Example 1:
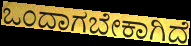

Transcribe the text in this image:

ಒಂದಾಗಬೇಕಾಗಿದೆ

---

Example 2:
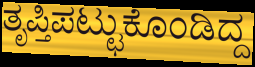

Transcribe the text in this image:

ತೃಪ್ತಿಪಟ್ಟುಕೊಂಡಿದ್ದ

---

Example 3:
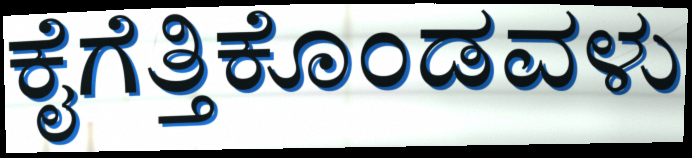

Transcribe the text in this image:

ಕೈಗೆತ್ತಿಕೊಂಡವಳು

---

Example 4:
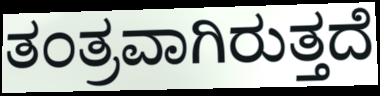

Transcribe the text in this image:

ತಂತ್ರವಾಗಿರುತ್ತದೆ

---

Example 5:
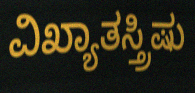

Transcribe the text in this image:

ವಿಖ್ಯಾತಸ್ತ್ರಿಷು